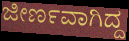
ಜೀರ್ಣವಾಗಿದ್ದ